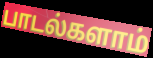
பாடல்களாம்